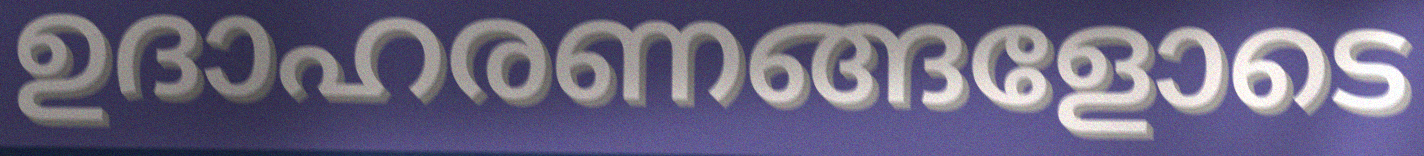
ഉദാഹരണങ്ങളോടെ